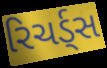
રિચર્ડ્સ